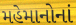
મહેમાનોનાં